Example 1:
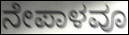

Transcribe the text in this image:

ನೇಪಾಳವೂ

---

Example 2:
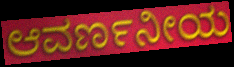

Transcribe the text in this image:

ಆವರ್ಣನೀಯ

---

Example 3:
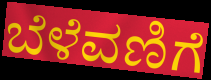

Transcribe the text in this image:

ಬೆಳೆವಣಿಗೆ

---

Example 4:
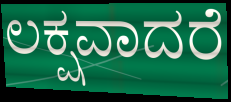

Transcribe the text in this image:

ಲಕ್ಷವಾದರೆ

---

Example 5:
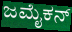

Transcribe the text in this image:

ಜಮೈಕನ್